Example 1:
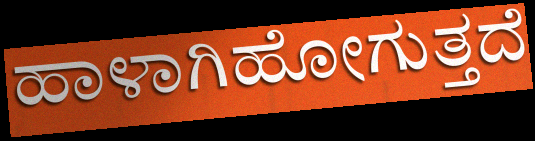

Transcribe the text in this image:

ಹಾಳಾಗಿಹೋಗುತ್ತದೆ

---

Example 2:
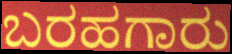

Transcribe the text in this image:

ಬರಹಗಾರು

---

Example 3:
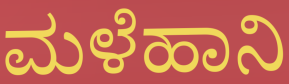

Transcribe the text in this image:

ಮಳೆಹಾನಿ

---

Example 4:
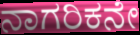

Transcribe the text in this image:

ನಾಗರಿಕನೇ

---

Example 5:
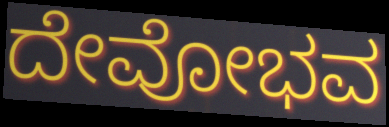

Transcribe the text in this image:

ದೇವೋಭವ